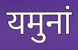
यमुनां